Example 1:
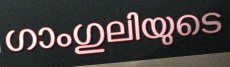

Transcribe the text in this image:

ഗാംഗുലിയുടെ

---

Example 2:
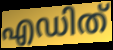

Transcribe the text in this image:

എഡിത്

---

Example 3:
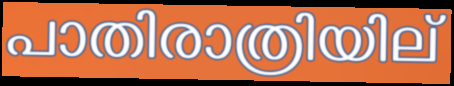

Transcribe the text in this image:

പാതിരാത്രിയില്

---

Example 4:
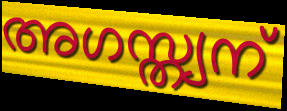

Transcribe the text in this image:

അഗസ്ത്യന്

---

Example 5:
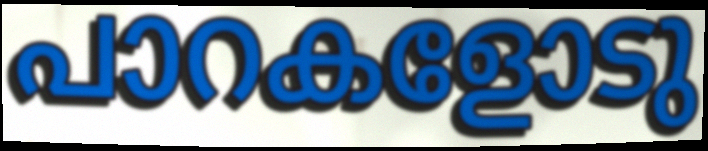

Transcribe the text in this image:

പാറകളോടു